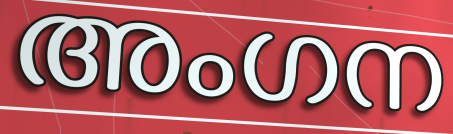
അംഗന